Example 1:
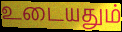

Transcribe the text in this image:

உடையதும்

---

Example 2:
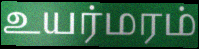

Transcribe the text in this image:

உயர்மரம்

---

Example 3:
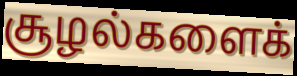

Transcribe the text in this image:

சூழல்களைக்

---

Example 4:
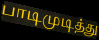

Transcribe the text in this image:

பாடிமுடித்து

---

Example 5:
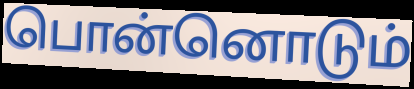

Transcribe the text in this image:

பொன்னொடும்